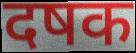
दषक